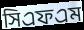
সিএফএম